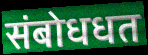
संबोधधत